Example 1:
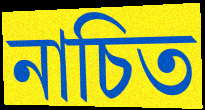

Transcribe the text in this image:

নাচিত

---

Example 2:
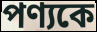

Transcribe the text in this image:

পণ্যকে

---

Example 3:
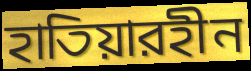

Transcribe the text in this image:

হাতিয়ারহীন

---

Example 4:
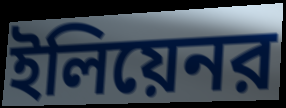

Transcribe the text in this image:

ইলিয়েনর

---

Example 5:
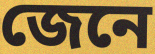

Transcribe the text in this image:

জেনে